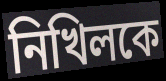
নিখিলকে